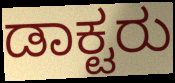
ಡಾಕ್ಟರು